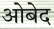
ओबेद